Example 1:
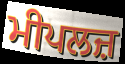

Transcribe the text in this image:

ਮੀਪਲਜ਼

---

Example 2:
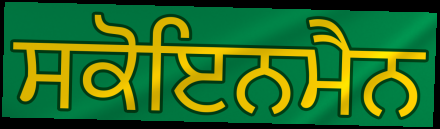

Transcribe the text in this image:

ਸਕੋਇਨਮੈਨ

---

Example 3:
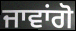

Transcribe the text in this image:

ਜਾਵਾਂਗੋ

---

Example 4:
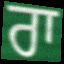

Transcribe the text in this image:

ਰਾ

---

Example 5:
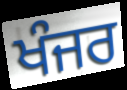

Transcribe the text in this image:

ਖੰਜਰ